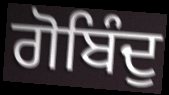
ਗੋਬਿੰਦੁ